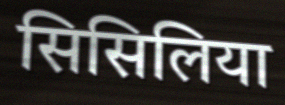
सिसिलिया